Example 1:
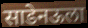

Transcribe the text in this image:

साडेनऊला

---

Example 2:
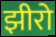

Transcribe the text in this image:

झीरो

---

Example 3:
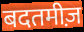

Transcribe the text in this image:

बदतमीज़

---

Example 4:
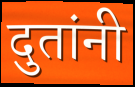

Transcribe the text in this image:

दुतांनी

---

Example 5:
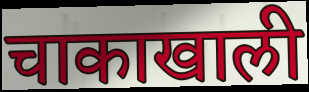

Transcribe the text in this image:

चाकाखाली